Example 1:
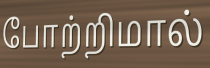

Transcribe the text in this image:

போற்றிமால்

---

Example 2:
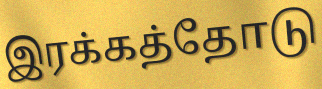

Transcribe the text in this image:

இரக்கத்தோடு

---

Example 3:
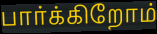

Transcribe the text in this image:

பார்க்கிறோம்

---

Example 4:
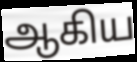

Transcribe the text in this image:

ஆகிய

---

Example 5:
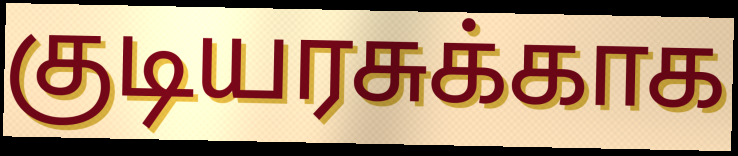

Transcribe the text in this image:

குடியரசுக்காக